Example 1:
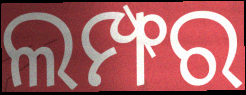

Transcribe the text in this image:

ଲମ୍ଫର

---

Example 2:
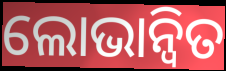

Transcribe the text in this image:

ଲୋଭାନ୍ୱିତ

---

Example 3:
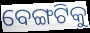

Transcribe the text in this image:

ବେଙ୍ଗଟିକୁ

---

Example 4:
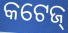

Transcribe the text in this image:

କଟେଜ୍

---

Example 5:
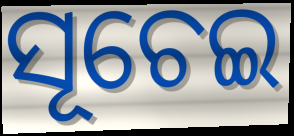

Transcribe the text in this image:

ସୂଚେଇ